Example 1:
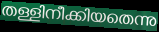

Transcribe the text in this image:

തള്ളിനീക്കിയതെന്നു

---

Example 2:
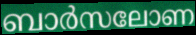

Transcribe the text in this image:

ബാർസലോണ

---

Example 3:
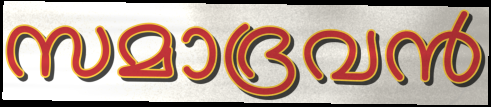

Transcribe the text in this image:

സമാദ്രവൻ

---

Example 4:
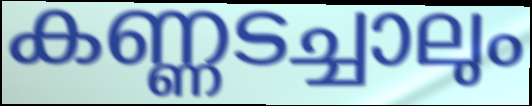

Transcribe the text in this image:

കണ്ണടച്ചാലും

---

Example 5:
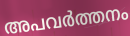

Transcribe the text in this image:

അപവർത്തനം